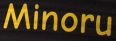
Minoru